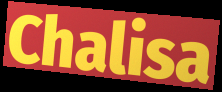
Chalisa